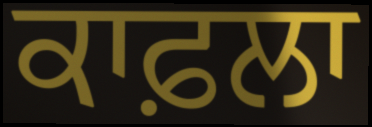
ਕਾਫ਼ਲਾ